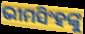
ଭୀମସିଂହଙ୍କୁ